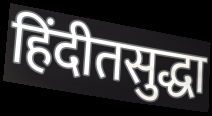
हिंदीतसुद्धा